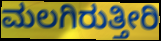
ಮಲಗಿರುತ್ತೀರಿ